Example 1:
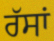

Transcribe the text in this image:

ਰੱਸਾਂ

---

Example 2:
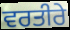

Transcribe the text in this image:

ਵਰਤੀਰੇ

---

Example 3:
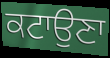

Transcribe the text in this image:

ਕਟਾਉਣਾ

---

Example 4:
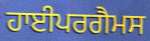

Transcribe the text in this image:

ਹਾਈਪਰਗੈਮਸ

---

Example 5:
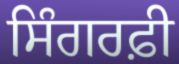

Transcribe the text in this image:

ਸਿੰਗਰਫ਼ੀ